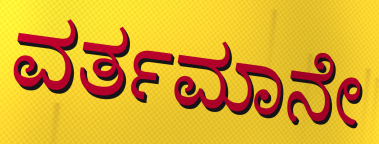
ವರ್ತಮಾನೇ